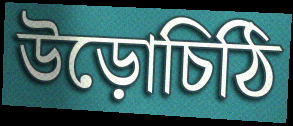
উড়োচিঠি